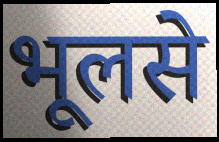
भूलसे